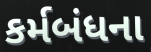
કર્મબંધના